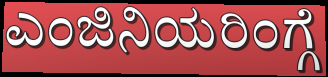
ಎಂಜಿನಿಯರಿಂಗ್ಗೆ